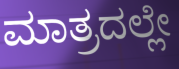
ಮಾತ್ರದಲ್ಲೇ